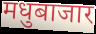
मधुबाजार